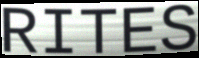
RITES